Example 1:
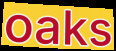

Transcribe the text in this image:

oaks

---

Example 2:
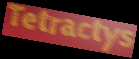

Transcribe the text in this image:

Tetractys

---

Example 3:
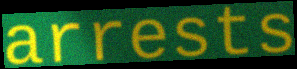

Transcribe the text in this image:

arrests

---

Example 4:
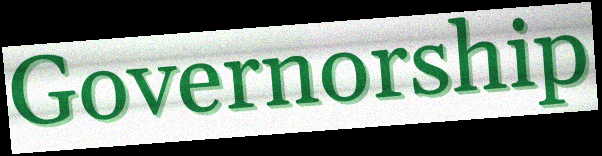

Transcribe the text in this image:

Governorship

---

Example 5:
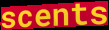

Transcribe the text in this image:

scents